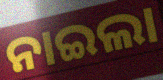
ନାଇଲା